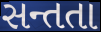
સન્તતા